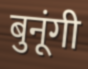
बुनूंगी